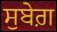
ਸੁਬੇਗ਼